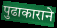
पुढाकाराने